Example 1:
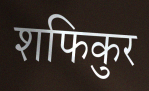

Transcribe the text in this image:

शफिकुर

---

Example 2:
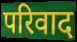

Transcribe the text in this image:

परिवाद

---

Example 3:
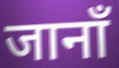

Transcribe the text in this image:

जानाँ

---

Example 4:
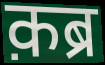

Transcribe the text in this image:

क़ब्र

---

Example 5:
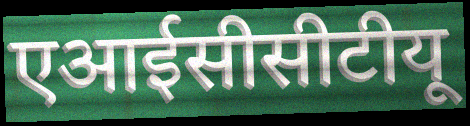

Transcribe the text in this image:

एआईसीसीटीयू